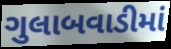
ગુલાબવાડીમાં